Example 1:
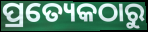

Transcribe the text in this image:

ପ୍ରତ୍ୟେକଠାରୁ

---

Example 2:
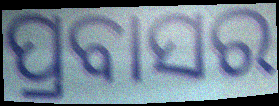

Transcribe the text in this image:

ପ୍ରବାସର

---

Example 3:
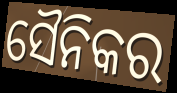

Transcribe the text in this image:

ସୈନିକର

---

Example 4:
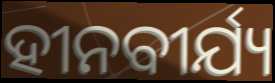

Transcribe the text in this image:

ହୀନବୀର୍ଯ୍ୟ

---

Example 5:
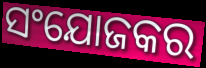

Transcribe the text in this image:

ସଂଯୋଜକର